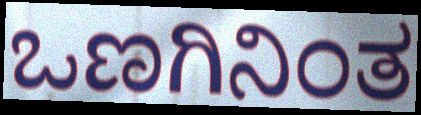
ಒಣಗಿನಿಂತ